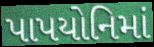
પાપયોનિમાં